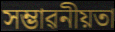
সম্ভাৱনীয়তা